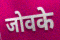
जोवके